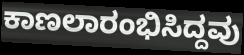
ಕಾಣಲಾರಂಭಿಸಿದ್ದವು